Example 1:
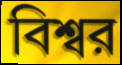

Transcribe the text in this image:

বিশ্বর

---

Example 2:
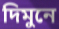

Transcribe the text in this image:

দিমুনে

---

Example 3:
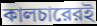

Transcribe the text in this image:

কালচারেরই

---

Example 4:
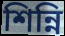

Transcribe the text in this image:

শিন্নি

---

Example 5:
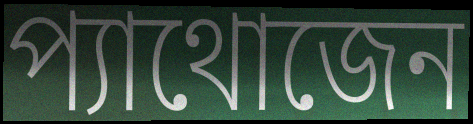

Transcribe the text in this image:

প্যাথোজেন